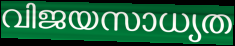
വിജയസാധ്യത